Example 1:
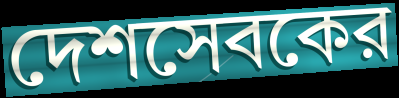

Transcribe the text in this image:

দেশসেবকের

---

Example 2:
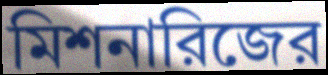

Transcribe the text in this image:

মিশনারিজের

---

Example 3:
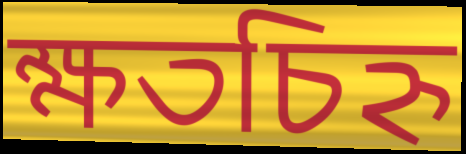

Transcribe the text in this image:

ক্ষতচিহ্ন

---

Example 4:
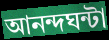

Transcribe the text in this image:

আনন্দঘন্টা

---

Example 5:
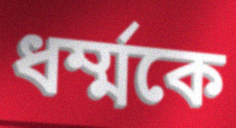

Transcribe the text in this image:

ধর্ম্মকে